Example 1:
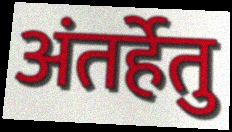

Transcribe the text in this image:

अंतर्हेतु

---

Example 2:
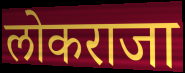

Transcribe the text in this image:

लोकराजा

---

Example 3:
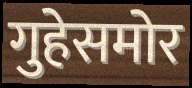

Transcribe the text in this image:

गुहेसमोर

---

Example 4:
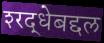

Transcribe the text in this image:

श्रद्धेबद्दल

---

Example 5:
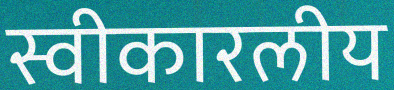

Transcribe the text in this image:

स्वीकारलीय